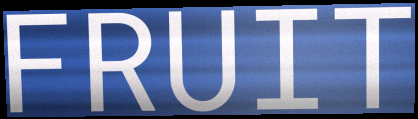
FRUIT